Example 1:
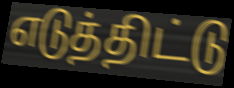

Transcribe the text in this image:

எடுத்திட்டு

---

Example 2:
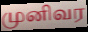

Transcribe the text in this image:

முனிவர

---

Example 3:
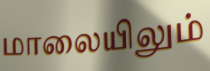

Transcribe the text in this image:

மாலையிலும்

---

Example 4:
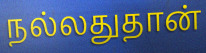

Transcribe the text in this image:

நல்லதுதான்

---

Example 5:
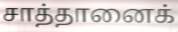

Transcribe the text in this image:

சாத்தானைக்